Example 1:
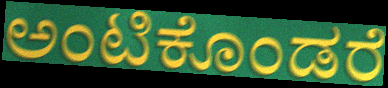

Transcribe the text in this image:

ಅಂಟಿಕೊಂಡರೆ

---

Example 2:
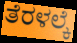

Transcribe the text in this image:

ತೆರಳಲ್ಕೆ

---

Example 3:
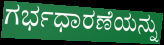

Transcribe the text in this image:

ಗರ್ಭಧಾರಣೆಯನ್ನು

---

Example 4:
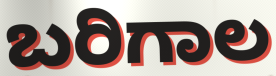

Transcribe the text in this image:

ಬರಿಗಾಲ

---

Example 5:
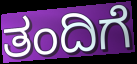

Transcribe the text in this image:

ತಂದಿಗೆ